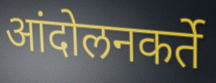
आंदोलनकर्ते